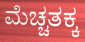
ಮೆಚ್ಚತಕ್ಕ